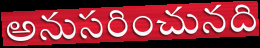
అనుసరించునది